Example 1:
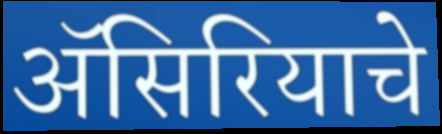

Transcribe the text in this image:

ॲसिरियाचे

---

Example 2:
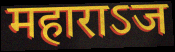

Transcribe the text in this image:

महाराऽज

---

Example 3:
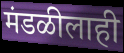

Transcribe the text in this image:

मंडळीलाही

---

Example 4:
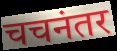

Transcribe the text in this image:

चचनंतर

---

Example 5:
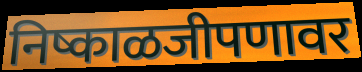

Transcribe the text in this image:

निष्काळजीपणावर